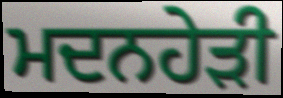
ਮਦਨਹੇੜੀ